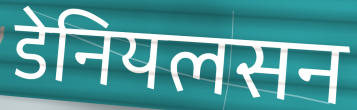
डेनियलसन